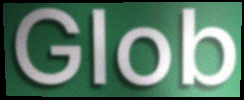
Glob